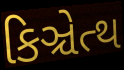
કિઞ્ચેત્થ